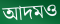
আদমও